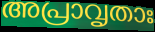
അപ്രാവൃതാഃ